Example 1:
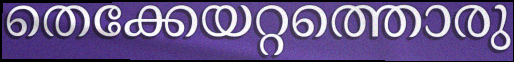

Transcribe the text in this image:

തെക്കേയറ്റത്തൊരു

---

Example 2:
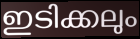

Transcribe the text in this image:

ഇടിക്കലും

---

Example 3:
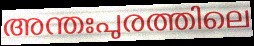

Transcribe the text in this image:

അന്തഃപുരത്തിലെ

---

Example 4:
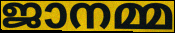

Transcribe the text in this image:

ജാനമ്മ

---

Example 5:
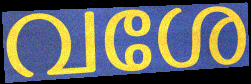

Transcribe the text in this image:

വശേ